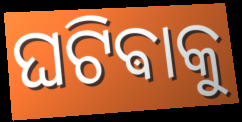
ଘଟିଵାକୁ